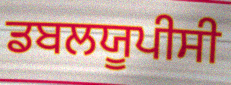
ਡਬਲਯੂਪੀਸੀ